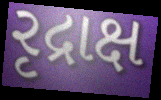
રૃદ્રાક્ષ